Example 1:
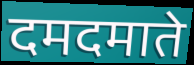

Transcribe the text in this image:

दमदमाते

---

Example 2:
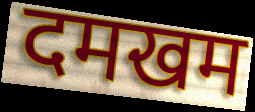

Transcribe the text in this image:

दमखम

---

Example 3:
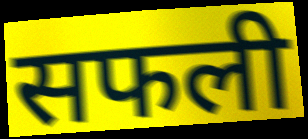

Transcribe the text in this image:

सफली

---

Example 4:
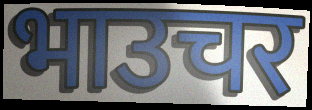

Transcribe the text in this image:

भाउचर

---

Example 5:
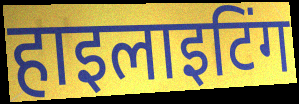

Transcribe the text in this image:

हाइलाइटिंग